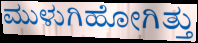
ಮುಳುಗಿಹೋಗಿತ್ತು